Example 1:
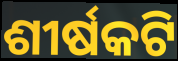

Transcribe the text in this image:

ଶୀର୍ଷକଟି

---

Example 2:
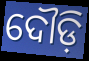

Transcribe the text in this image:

ଦୌଡ଼ି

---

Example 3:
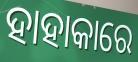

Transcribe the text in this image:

ହାହାକାରେ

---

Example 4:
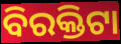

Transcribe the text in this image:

ବିରକ୍ତିଟା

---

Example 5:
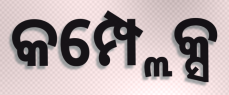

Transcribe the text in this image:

କମ୍ପ୍ଲେକ୍ସ